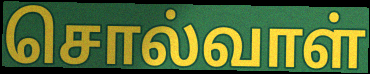
சொல்வாள்